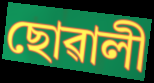
ছোৱালী